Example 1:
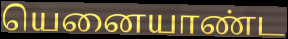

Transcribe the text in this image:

யெனையாண்ட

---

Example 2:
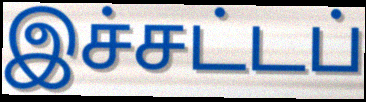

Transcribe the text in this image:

இச்சட்டப்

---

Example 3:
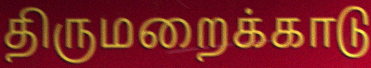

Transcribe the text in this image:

திருமறைக்காடு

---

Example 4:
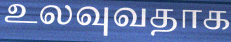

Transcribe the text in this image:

உலவுவதாக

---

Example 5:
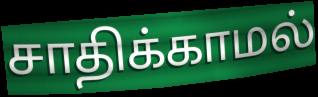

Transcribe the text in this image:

சாதிக்காமல்